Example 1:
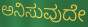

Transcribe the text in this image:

ಅನಿಸುವುದೇ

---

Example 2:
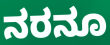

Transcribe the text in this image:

ನರನೂ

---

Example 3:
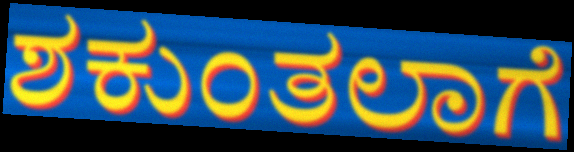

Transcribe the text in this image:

ಶಕುಂತಲಾಗೆ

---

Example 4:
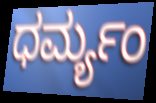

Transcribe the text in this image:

ಧರ್ಮ್ಯಂ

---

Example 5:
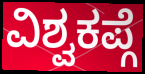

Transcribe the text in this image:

ವಿಶ್ವಕಪ್ಗೆ